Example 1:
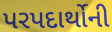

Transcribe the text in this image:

પરપદાર્થોની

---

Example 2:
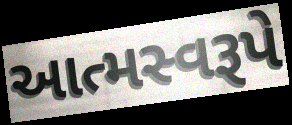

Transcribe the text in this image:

આત્મસ્વરૂપે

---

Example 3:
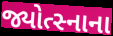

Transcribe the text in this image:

જ્યોત્સ્નાના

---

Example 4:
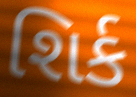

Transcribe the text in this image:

શિર્ક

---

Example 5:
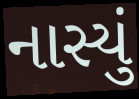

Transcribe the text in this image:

નાસ્યું